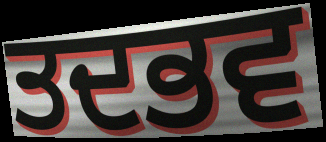
ਤਦਭਵ